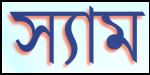
স্যাম